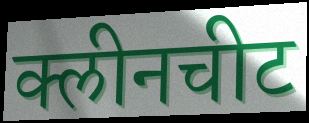
क्लीनचीट